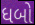
ધબો